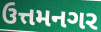
ઉત્તમનગર